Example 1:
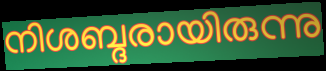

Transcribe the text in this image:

നിശബ്ദരായിരുന്നു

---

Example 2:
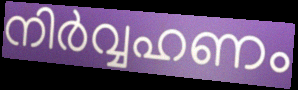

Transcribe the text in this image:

നിർവ്വഹണം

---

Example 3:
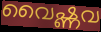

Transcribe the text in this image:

വൈഷ്ണവ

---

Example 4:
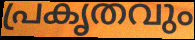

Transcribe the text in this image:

പ്രകൃതവും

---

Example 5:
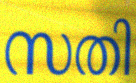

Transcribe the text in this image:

സതി